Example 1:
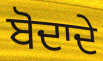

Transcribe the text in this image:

ਬੋਦਾਦੇ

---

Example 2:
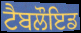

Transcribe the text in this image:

ਟੈਬਲੌਇਡ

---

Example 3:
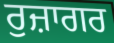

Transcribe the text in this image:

ਰੁਜ਼ਾਗਰ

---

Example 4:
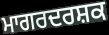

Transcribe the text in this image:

ਮਾਗਰਦਰਸ਼ਕ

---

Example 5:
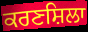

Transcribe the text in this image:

ਕਰਣਸ਼ਿਲਾ